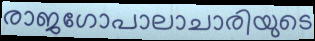
രാജഗോപാലാചാരിയുടെ